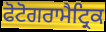
ਫੋਟੋਗਰਾਮੈਟ੍ਰਿਕ